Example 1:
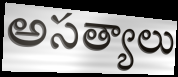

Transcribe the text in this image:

అసత్యాలు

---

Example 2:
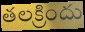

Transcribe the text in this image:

తలక్రిందు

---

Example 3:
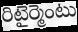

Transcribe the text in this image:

రిటైర్మెంటు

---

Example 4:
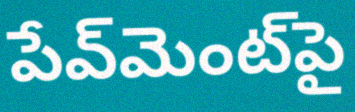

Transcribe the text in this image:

పేవ్‌మెంట్‌పై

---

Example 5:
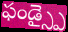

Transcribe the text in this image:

ఫండ్స్పై